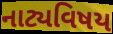
નાટ્યવિષય